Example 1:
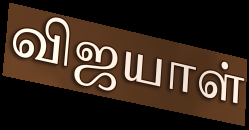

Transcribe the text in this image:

விஜயாள்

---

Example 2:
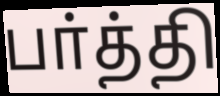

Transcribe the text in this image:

பர்த்தி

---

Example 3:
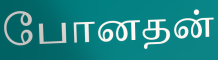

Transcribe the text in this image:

போனதன்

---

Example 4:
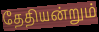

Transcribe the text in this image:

தேதியன்றும்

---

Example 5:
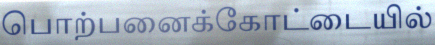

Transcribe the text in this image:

பொற்பனைக்கோட்டையில்